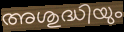
അശുദ്ധിയും